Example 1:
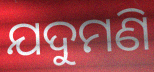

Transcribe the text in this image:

ଯଦୁମଣି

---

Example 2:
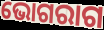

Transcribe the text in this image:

ଭୋଗରାଗ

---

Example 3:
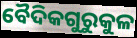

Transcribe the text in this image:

ବୈଦିକଗୁରୁକୁଳ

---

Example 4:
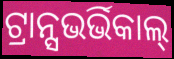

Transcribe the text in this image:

ଟ୍ରାନ୍ସଭର୍ଭିକାଲ୍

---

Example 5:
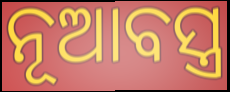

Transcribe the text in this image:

ନୂଆବସ୍ତ୍ର